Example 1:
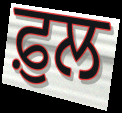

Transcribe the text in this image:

ਫ਼ੁਲ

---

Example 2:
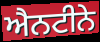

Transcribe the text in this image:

ਐਨਟੀਨੇ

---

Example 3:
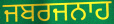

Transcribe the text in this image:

ਜਬਰਜਨਾਹ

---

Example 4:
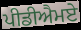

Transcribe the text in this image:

ਪੀਡੀਐਮਏ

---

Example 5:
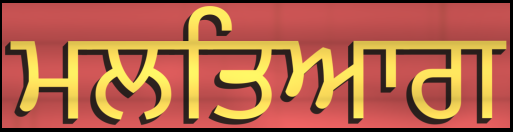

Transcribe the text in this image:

ਮਲਤਿਆਗ